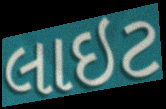
લાઇટ